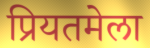
प्रियतमेला